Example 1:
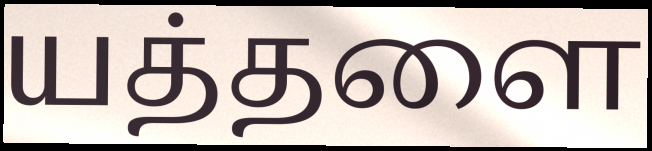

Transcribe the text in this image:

யத்தளை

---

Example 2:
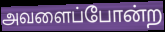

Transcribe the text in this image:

அவளைப்போன்ற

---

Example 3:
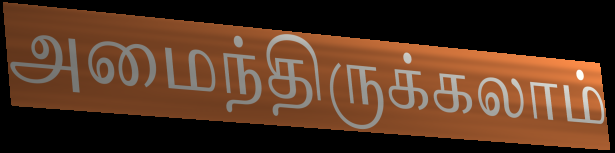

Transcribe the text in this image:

அமைந்திருக்கலாம்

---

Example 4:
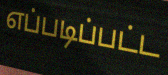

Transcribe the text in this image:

எப்படிப்பட்ட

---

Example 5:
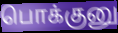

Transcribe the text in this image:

பொக்குனு